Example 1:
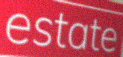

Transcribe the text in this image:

estate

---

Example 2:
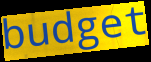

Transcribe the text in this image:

budget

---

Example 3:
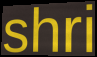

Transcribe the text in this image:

shri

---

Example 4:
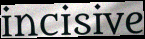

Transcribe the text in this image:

incisive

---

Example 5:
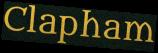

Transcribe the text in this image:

Clapham